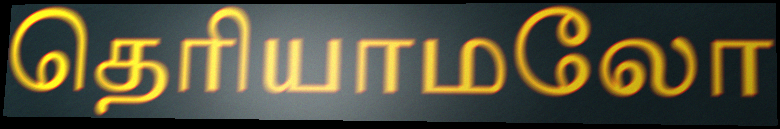
தெரியாமலோ